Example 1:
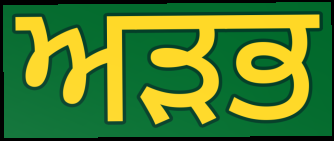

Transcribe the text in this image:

ਅੜਭ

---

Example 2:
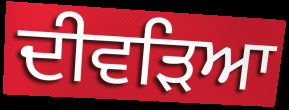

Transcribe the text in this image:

ਦੀਵੜਿਆ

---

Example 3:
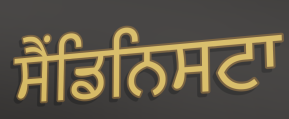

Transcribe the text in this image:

ਸੈਂਡਿਨਿਸਟਾ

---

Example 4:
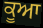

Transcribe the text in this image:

ਕੂਆ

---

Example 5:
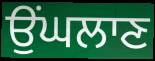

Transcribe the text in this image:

ਉਂਘਲਾਣ